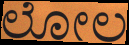
ಲೋಲ